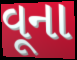
વૂના